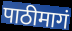
पाठीमागं